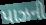
પાઝની